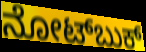
ನೋಟ್‌ಬುಕ್